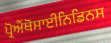
ਪ੍ਰੋਐਂਥੋਸਾਈਨਿਡਿਨਸ